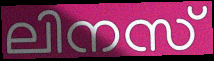
ലിനസ്